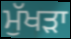
ਮੁੱਖੜਾ